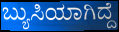
ಬ್ಯುಸಿಯಾಗಿದ್ದೆ